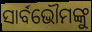
ସାର୍ବଭୌମଙ୍କୁ